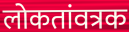
लोकतांवत्रक